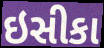
ઇસીકા